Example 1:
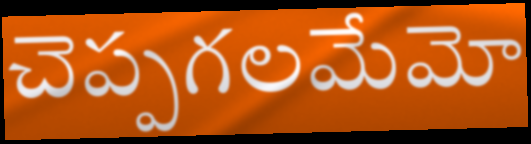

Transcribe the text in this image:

చెప్పగలమేమో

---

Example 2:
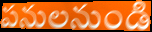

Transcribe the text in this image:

పనులనుండి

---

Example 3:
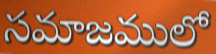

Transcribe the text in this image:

సమాజములో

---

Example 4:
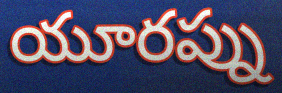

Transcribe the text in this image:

యూరప్ను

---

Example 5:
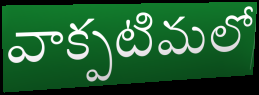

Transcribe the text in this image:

వాక్పటిమలో